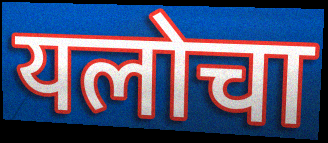
यलोचा